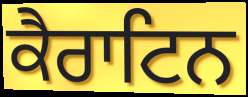
ਕੈਰਾਟਿਨ